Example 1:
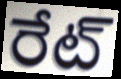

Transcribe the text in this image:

రేట్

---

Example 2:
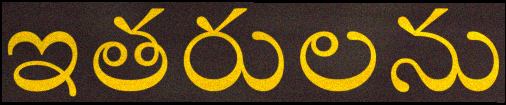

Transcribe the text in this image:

ఇతరులను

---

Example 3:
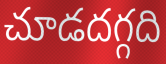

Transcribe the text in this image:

చూడదగ్గది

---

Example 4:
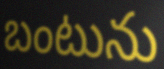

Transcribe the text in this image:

బంటును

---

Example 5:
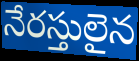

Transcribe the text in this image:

నేరస్తులైన